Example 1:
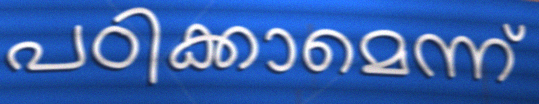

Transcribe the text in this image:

പഠിക്കാമെന്ന്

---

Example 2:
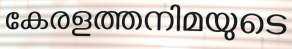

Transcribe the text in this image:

കേരളത്തനിമയുടെ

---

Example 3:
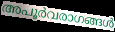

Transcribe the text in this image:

അപൂർവരാഗങ്ങൾ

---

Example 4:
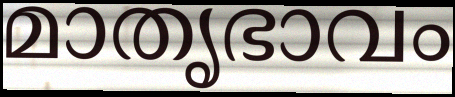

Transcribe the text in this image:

മാതൃഭാവം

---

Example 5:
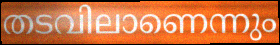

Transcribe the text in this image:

തടവിലാണെന്നും